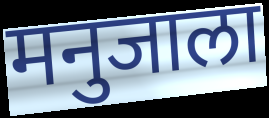
मनुजाला